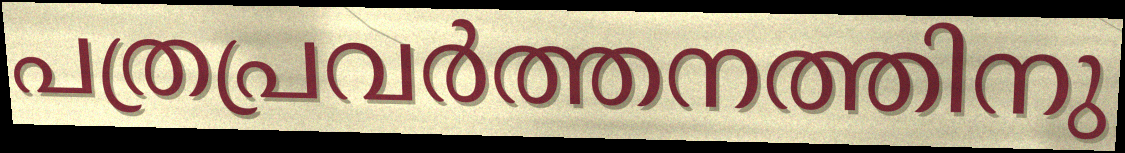
പത്രപ്രവർത്തനത്തിനു